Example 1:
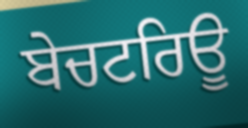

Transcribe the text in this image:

ਬੇਚਟਰਿਊ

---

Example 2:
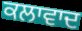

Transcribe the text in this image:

ਕਲਾਵਾਦ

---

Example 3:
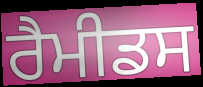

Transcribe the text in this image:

ਰੈਮੀਡਸ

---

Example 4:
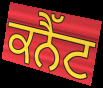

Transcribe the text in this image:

ਕਨੈੱਟ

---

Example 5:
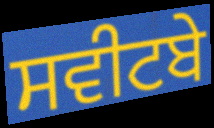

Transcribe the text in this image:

ਸਵੀਟਬੇ